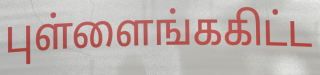
புள்ளைங்ககிட்ட